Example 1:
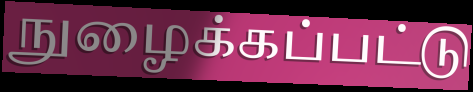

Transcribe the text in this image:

நுழைக்கப்பட்டு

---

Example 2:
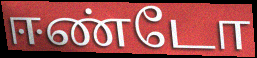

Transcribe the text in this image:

ஈண்டோ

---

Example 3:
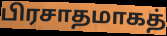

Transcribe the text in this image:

பிரசாதமாகத்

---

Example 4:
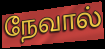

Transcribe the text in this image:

நேவால்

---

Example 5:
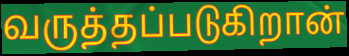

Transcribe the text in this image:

வருத்தப்படுகிறான்